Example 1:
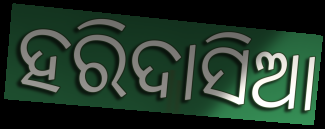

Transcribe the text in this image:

ହରିଦାସିଆ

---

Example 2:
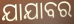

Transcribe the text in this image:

ଯାଯାବର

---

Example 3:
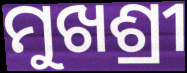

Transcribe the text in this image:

ମୁଖଶ୍ରୀ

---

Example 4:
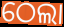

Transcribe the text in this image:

ଠେଲା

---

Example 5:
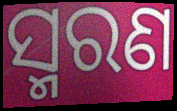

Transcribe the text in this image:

ସ୍ମରଣ